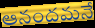
ఆనందమనే